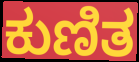
ಕುಣಿತ